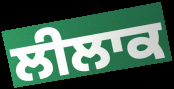
ਲੀਲਾਕ